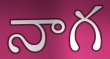
నాగ